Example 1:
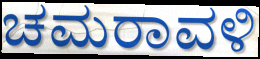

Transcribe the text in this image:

ಚಮರಾವಳಿ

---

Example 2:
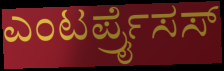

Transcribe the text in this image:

ಎಂಟರ್ಪ್ರೈಸಸ್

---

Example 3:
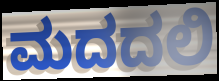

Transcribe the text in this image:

ಮದದಲಿ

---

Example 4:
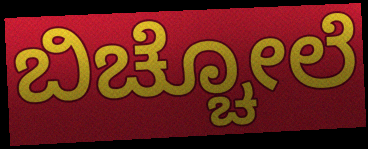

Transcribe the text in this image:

ಬಿಚ್ಚೋಲೆ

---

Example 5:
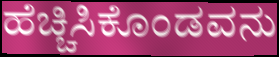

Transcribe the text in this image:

ಹೆಚ್ಚಿಸಿಕೊಂಡವನು